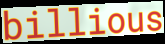
billious